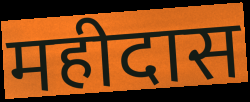
महीदास